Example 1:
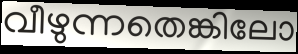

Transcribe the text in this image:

വീഴുന്നതെങ്കിലോ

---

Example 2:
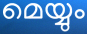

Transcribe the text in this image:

മെയ്യും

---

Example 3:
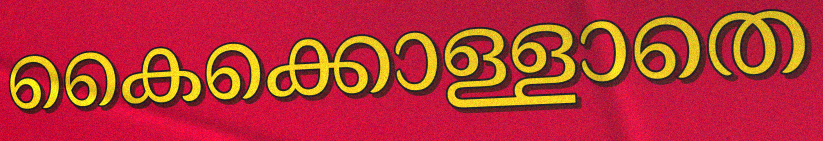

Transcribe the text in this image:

കൈക്കൊള്ളാതെ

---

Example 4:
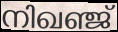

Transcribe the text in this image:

നിഖഞ്ജ്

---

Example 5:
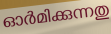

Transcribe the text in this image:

ഓർമിക്കുന്നതു